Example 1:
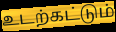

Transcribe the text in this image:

உடற்கட்டும்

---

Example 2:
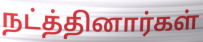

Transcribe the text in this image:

நட்த்தினார்கள்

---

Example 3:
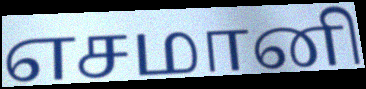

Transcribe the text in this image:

எசமானி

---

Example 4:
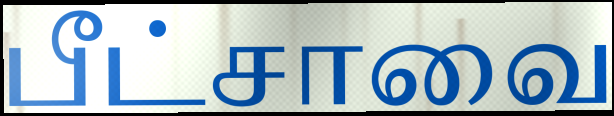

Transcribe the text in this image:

பீட்சாவை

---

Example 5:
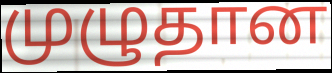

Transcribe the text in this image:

முழுதான